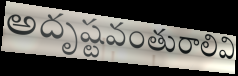
అదృష్టవంతురాలివి